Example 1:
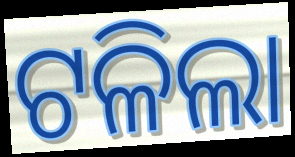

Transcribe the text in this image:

ଟଳିଲା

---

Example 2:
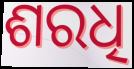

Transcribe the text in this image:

ଶରଧି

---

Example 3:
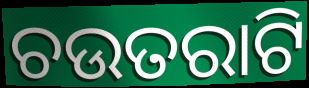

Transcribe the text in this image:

ଚଉତରାଟି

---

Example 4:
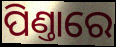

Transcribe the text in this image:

ପିଣ୍ତାରେ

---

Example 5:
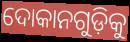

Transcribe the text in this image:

ଦୋକାନଗୁଡ଼ିକୁ